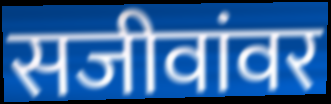
सजीवांवर